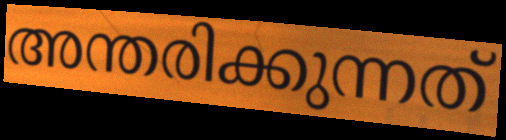
അന്തരിക്കുന്നത്